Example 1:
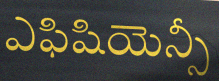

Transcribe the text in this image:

ఎఫిషియెన్సీ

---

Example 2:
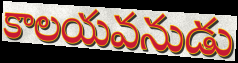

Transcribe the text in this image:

కాలయవనుడు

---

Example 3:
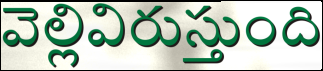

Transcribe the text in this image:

వెల్లివిరుస్తుంది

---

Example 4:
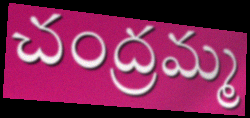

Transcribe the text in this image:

చంద్రమ్మ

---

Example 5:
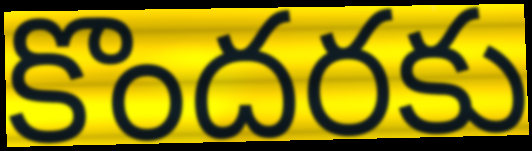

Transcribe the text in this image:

కొందరకు